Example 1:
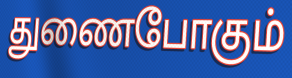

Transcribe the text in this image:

துணைபோகும்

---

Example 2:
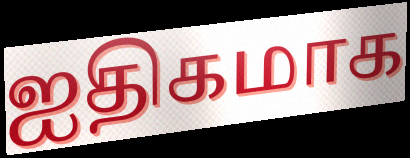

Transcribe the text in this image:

ஐதிகமாக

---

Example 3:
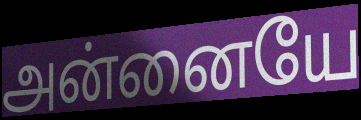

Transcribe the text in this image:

அன்னையே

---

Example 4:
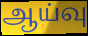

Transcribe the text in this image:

ஆய்வு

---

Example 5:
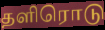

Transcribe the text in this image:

தளிரொடு